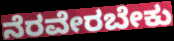
ನೆರವೇರಬೇಕು